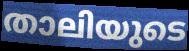
താലിയുടെ